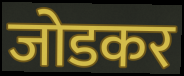
जोडकर